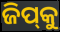
ଜିପ୍‍କୁ